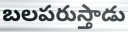
బలపరుస్తాడు